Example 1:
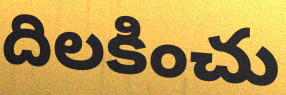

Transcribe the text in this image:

దిలకించు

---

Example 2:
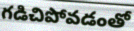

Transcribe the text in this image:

గడిచిపోవడంతో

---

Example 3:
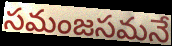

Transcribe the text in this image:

సమంజసమనే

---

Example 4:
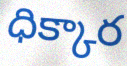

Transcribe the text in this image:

ధిక్కార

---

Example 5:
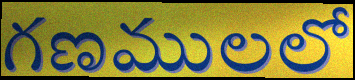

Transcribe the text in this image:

గణములలో